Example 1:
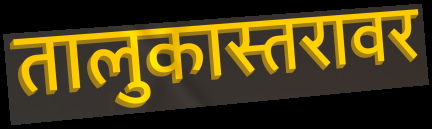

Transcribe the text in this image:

तालुकास्तरावर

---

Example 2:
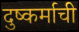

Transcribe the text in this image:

दुष्कर्माची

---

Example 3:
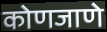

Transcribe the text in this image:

कोणजाणे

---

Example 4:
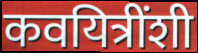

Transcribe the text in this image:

कवयित्रींशी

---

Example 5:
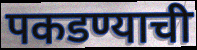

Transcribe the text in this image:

पकडण्याची